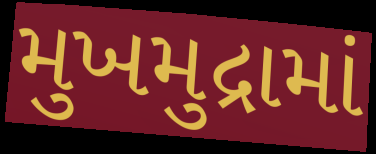
મુખમુદ્રામાં